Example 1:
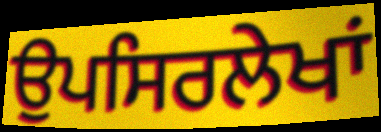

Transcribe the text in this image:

ਉਪਸਿਰਲੇਖਾਂ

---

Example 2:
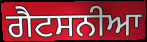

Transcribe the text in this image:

ਗੈਟਸਨੀਆ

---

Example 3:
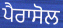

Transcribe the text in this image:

ਪੈਰਾਸੋਲ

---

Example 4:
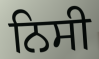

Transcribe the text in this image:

ਨਿਸੀ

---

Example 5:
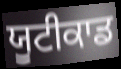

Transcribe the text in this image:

ਯੂਟੀਕਾਡ